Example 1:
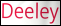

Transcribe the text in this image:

Deeley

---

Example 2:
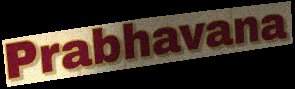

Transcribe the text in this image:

Prabhavana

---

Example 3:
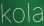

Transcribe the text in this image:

kola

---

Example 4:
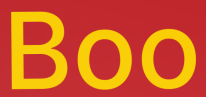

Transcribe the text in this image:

Boo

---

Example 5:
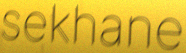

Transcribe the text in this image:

sekhane